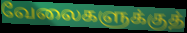
வேலைகளுக்குத்